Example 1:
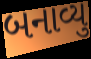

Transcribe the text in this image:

બનાવ્યુ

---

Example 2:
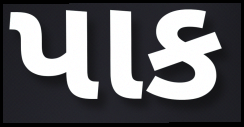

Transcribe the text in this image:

પાક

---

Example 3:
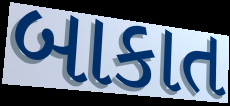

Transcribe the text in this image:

બાકાત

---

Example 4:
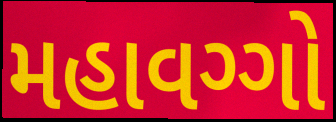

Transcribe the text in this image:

મહાવગ્ગો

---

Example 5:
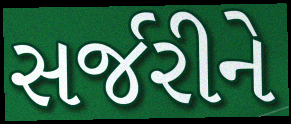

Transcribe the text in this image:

સર્જરીને